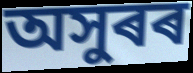
অসুৰৰ